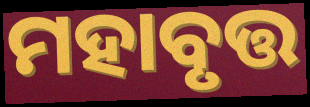
ମହାବୃତ୍ତ